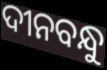
ଦୀନବନ୍ଧୁ